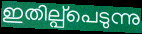
ഇതില്പ്പെടുന്നു